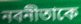
নবনীতাকে